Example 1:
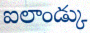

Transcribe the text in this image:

ఐలాండ్కు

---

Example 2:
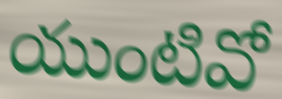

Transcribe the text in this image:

యుంటివో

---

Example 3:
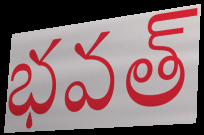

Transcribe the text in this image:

భవత్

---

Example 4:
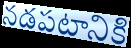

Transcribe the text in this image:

నడపటానికి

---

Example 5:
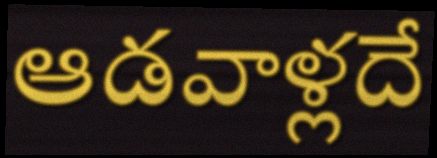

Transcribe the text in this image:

ఆడవాళ్లదే